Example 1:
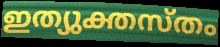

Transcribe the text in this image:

ഇത്യുക്തസ്തം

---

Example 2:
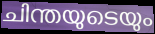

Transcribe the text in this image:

ചിന്തയുടെയും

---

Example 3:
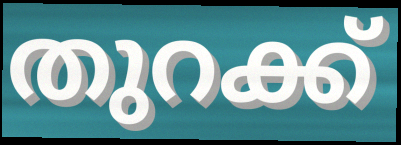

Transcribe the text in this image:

തുറക്ക്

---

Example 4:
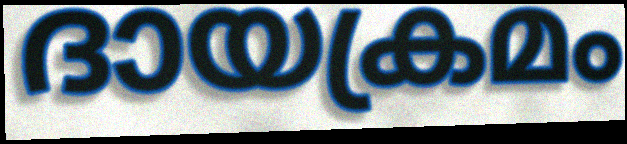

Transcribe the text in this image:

ദായക്രമം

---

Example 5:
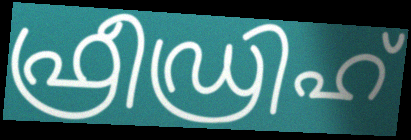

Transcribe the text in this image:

ഫ്രീഡ്രിഹ്